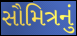
સૌમિત્રનું